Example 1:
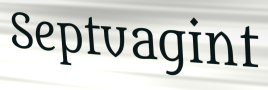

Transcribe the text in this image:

Septuagint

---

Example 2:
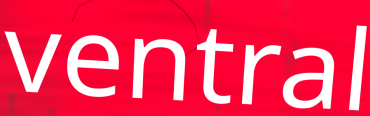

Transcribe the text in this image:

ventral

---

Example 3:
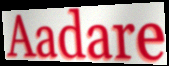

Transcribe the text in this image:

Aadare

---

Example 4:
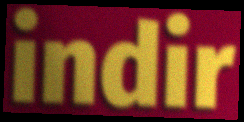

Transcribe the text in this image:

indir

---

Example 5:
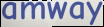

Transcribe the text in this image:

amway